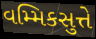
વમ્મિકસુત્તે